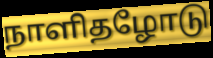
நாளிதழோடு